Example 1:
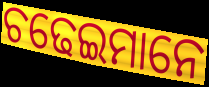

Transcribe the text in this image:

ଚଢେଇମାନେ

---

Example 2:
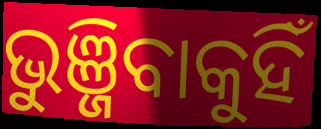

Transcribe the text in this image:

ଭୁଞ୍ଜିବାକୁହିଁ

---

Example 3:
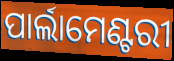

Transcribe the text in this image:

ପାର୍ଲାମେଣ୍ଟରୀ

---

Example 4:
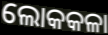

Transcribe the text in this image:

ଲୋକକଳା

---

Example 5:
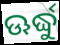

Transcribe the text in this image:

ଊର୍ଦ୍ଧୁ